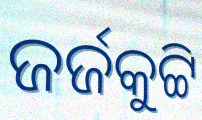
ଜର୍ଜକୁଟ୍ଟି